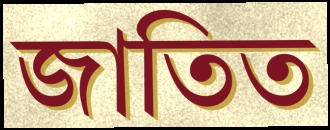
জাতিত